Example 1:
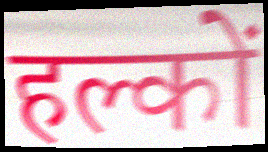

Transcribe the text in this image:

हल्कों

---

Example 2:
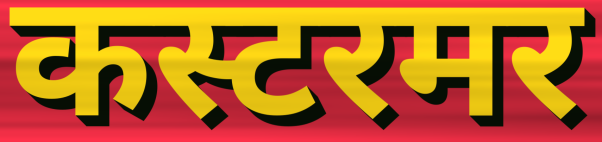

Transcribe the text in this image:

कस्टरमर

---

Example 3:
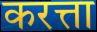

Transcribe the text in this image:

करत्ता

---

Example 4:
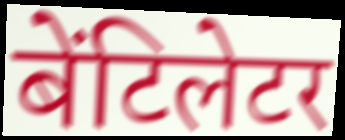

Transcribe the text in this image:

बेंटिलेटर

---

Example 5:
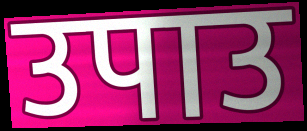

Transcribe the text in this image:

उपाउ